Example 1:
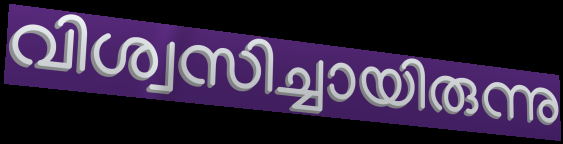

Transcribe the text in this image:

വിശ്വസിച്ചായിരുന്നു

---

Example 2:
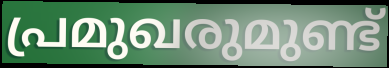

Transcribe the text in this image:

പ്രമുഖരുമുണ്ട്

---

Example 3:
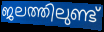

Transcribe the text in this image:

ജലത്തിലുണ്ട്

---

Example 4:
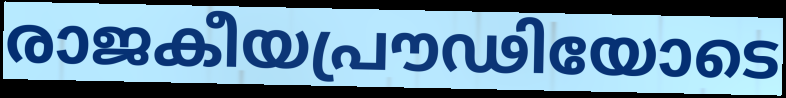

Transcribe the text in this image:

രാജകീയപ്രൗഢിയോടെ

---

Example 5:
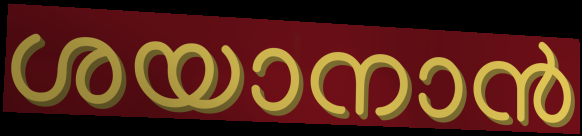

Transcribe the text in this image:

ശയാനാൻ